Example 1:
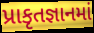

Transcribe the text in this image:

પ્રાકૃતજ્ઞાનમાં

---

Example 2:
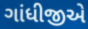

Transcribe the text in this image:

ગાંધીજીએ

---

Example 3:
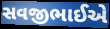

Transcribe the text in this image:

સવજીભાઈએ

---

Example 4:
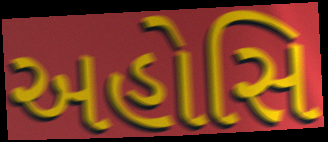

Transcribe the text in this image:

અહોસિ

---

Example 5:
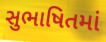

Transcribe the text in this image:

સુભાષિતમાં